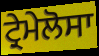
ਟ੍ਰੇਮੇਲੋਸਾ